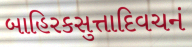
બાહિરકસુત્તાદિવચનં